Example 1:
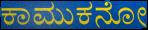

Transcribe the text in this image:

ಕಾಮುಕನೋ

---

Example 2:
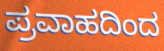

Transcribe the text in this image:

ಪ್ರವಾಹದಿಂದ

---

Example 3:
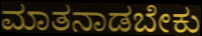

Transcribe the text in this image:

ಮಾತನಾಡಬೇಕು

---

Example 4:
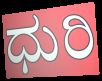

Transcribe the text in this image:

ಧುರಿ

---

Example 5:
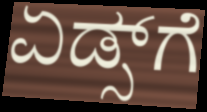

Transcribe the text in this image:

ಏಡ್ಸ್‌ಗೆ